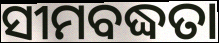
ସୀମବଦ୍ଧତା